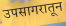
उपसागरातून